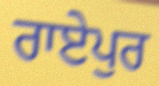
ਰਾਏਪੁਰ